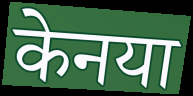
केनया